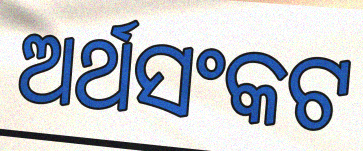
ଅର୍ଥସଂକଟ